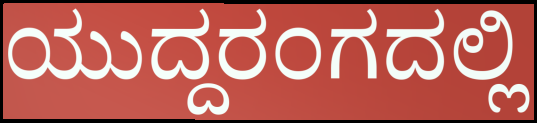
ಯುದ್ದರಂಗದಲ್ಲಿ